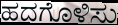
ಹದಗೊಳಿಸು